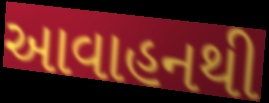
આવાહનથી